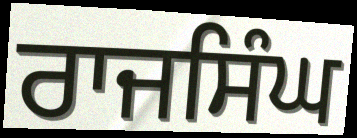
ਰਾਜਸਿੰਘ